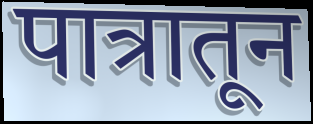
पात्रातून